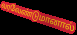
வரவேண்டுமானால்